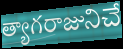
త్యాగరాజునిచే